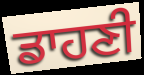
ਡਾਹਣੀ